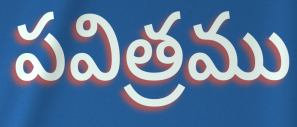
పవిత్రము